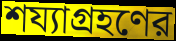
শয্যাগ্রহণের